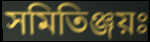
সমিতিঞ্জয়ঃ